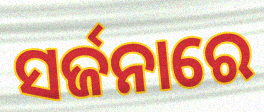
ସର୍ଜନାରେ